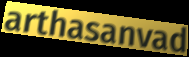
arthasanvad